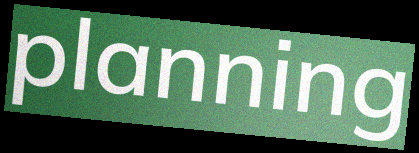
planning